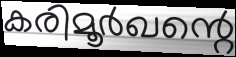
കരിമൂർഖന്റെ